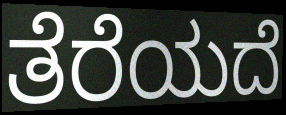
ತೆರೆಯದೆ